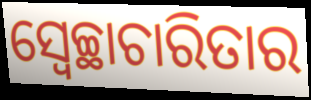
ସ୍ୱେଚ୍ଛାଚାରିତାର